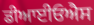
ਡੀਆਈਓਐਸ